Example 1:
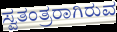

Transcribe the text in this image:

ಸ್ವತಂತ್ರರಾಗಿರುವ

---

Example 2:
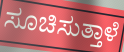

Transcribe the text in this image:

ಸೂಚಿಸುತ್ತಾಳೆ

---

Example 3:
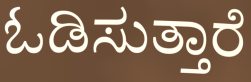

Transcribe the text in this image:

ಓಡಿಸುತ್ತಾರೆ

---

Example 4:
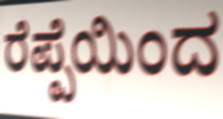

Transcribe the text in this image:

ರೆಪ್ಪೆಯಿಂದ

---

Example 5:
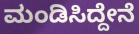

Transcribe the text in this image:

ಮಂಡಿಸಿದ್ದೇನೆ